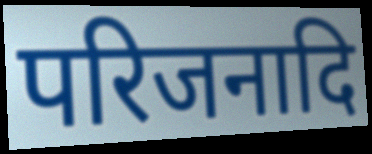
परिजनादि